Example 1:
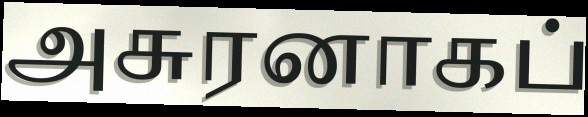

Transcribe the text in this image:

அசுரனாகப்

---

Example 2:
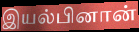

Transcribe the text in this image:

இயல்பினான்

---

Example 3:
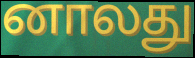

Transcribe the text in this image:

னாலது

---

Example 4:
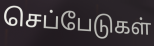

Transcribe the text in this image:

செப்பேடுகள்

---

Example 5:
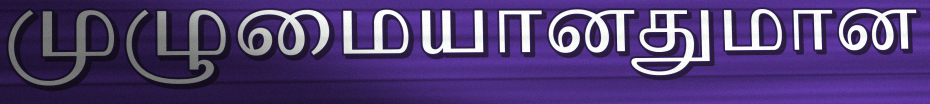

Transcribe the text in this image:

முழுமையானதுமான